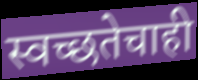
स्वच्छतेचाही